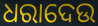
ଧରାଦେଉ